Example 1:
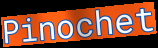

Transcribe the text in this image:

Pinochet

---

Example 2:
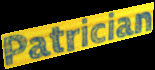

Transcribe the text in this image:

Patrician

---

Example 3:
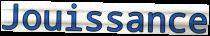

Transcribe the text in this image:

Jouissance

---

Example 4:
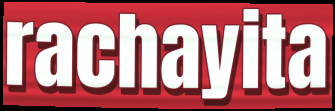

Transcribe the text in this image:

rachayita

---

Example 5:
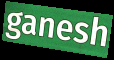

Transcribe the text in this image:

ganesh